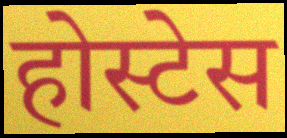
होस्टेस